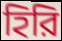
হিরি